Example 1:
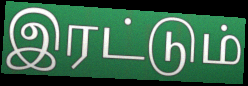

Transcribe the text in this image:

இரட்டும்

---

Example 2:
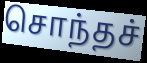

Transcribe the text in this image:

சொந்தச்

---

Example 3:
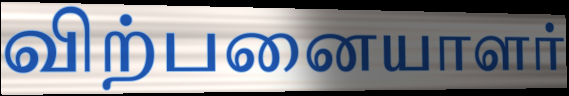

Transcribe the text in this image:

விற்பனையாளர்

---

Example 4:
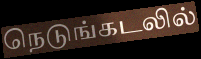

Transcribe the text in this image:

நெடுங்கடலில்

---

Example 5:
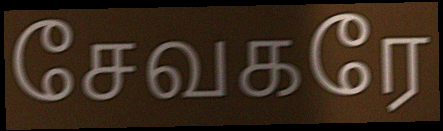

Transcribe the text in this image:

சேவகரே